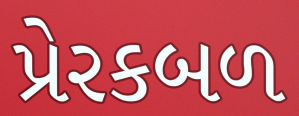
પ્રેરકબળ